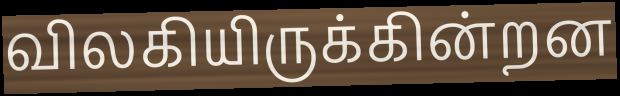
விலகியிருக்கின்றன